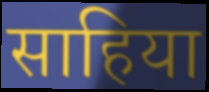
साहिया